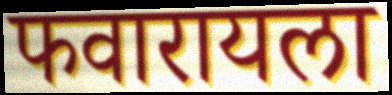
फवारायला